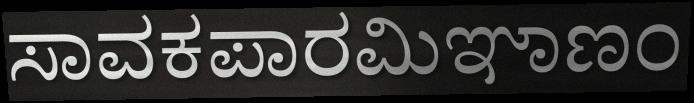
ಸಾವಕಪಾರಮಿಞಾಣಂ